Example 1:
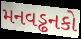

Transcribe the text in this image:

મનવડ્ઢનકો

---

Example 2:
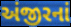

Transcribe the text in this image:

અંજીરનાં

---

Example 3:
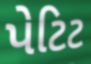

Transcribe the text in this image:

પેટિટ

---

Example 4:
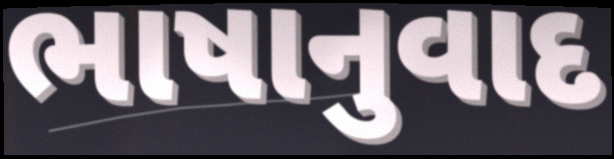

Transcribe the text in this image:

ભાષાનુવાદ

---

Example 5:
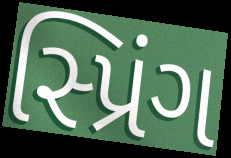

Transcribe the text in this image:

સ્પ્રિંગ